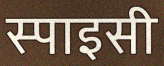
स्पाइसी